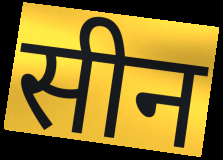
सीन